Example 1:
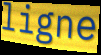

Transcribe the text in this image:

ligne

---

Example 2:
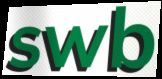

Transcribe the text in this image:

swb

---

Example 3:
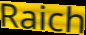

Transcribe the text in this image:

Raich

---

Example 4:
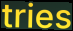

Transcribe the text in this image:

tries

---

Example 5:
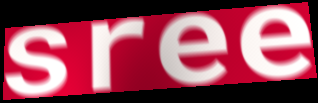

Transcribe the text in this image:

sree